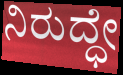
ನಿರುದ್ಧೇ